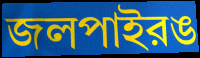
জলপাইরঙ